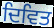
ਦਿਵਿਤ